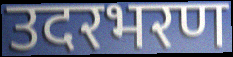
उदरभरण